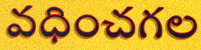
వధించగల